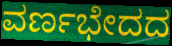
ವರ್ಣಭೇದದ